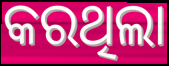
କରଥିଲା